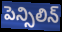
పెన్సిలిన్